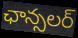
ఛాన్సలర్